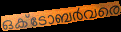
ഒക്ടോബർവരെ